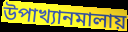
উপাখ্যানমালায়